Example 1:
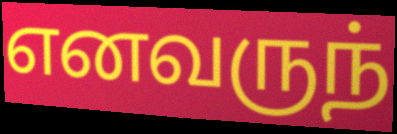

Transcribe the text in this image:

எனவருந்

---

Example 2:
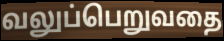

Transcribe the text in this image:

வலுப்பெறுவதை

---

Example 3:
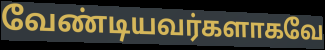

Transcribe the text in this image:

வேண்டியவர்களாகவே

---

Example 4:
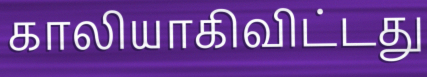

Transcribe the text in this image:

காலியாகிவிட்டது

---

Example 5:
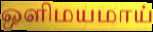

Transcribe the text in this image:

ஒளிமயமாய்